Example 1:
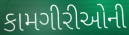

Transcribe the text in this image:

કામગીરીઓની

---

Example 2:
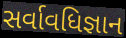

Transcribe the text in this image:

સર્વાવધિજ્ઞાન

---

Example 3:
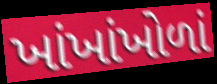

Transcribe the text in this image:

ખાંખાંખોળાં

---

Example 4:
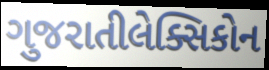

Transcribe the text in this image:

ગુજરાતીલેક્સિકોન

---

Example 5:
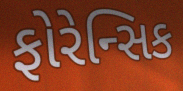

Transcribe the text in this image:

ફોરેન્સિક